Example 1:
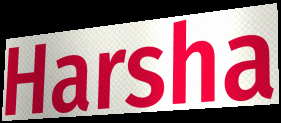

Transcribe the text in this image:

Harsha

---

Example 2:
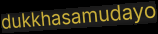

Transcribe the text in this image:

dukkhasamudayo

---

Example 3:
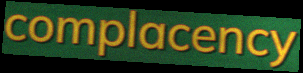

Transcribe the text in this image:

complacency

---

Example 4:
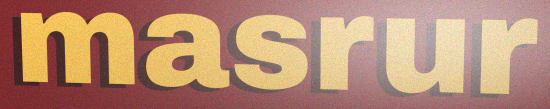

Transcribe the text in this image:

masrur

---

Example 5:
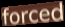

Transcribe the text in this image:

forced